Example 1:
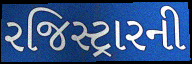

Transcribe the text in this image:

રજિસ્ટ્રારની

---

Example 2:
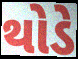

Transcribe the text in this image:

થોડે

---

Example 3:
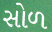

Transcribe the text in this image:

સોળ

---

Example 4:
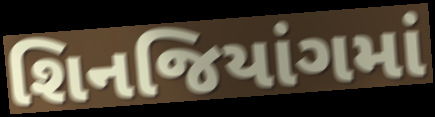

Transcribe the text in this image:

શિનજિયાંગમાં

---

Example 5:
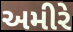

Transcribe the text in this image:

અમીરે